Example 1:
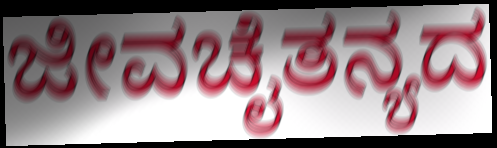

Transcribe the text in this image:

ಜೀವಚೈತನ್ಯದ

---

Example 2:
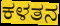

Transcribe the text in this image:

ಕಳತನ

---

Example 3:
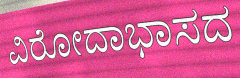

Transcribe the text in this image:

ವಿರೋದಾಭಾಸದ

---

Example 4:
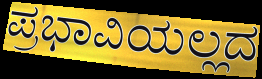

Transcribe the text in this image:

ಪ್ರಭಾವಿಯಲ್ಲದ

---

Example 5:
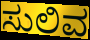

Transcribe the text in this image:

ಸುಲಿವ